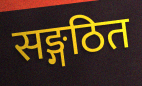
सङ्गठित